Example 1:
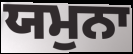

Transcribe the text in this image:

ਯਮੁਨਾ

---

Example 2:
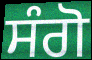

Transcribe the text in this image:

ਸੰਗੋ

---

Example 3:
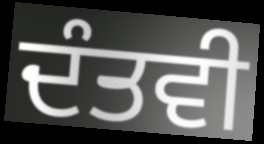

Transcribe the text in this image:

ਦੰਤਵੀ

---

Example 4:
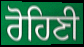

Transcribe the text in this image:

ਰੋਹਿਣੀ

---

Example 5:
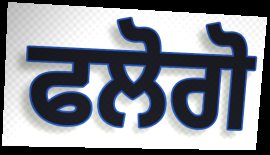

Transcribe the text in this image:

ਫਲੋਗੋ